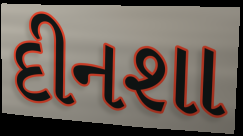
દીનશા